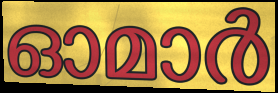
ഓമാർ